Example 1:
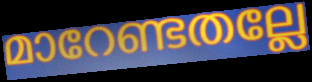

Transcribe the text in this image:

മാറേണ്ടതല്ലേ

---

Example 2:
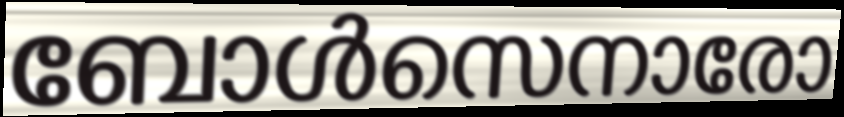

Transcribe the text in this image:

ബോൾസെനാരോ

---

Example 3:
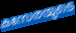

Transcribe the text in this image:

കസേരയുടെ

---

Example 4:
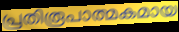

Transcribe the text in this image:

പ്രതിരൂപാത്മകമായ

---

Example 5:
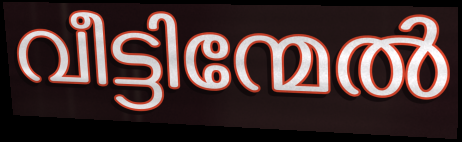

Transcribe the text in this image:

വീട്ടിന്മേൽ